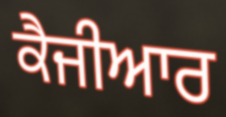
ਕੈਜੀਆਰ